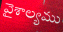
వైశాల్యము